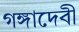
গঙ্গাদেবী